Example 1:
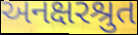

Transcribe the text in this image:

અનક્ષરશ્રુત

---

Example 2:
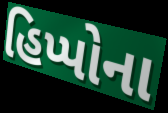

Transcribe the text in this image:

હિપ્પોના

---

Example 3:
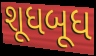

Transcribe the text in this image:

શૂધબૂધ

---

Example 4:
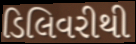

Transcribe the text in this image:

ડિલિવરીથી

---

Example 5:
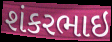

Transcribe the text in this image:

શંકરભાઇ